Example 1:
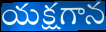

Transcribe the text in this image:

యక్షగాన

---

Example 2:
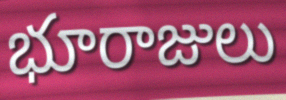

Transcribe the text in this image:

భూరాజులు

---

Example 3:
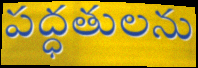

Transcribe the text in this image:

పద్ధతులను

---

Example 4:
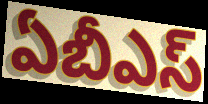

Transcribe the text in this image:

ఏబీఎస్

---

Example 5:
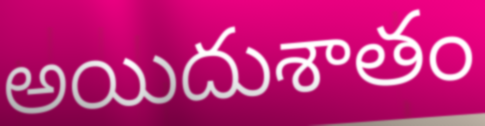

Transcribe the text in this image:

అయిదుశాతం